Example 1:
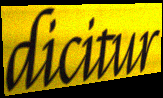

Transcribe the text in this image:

dicitur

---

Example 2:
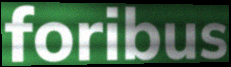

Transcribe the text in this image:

foribus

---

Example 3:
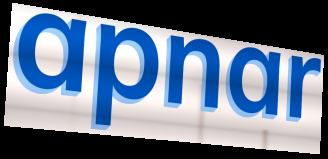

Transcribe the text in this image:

apnar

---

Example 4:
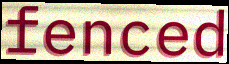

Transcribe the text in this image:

fenced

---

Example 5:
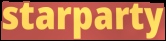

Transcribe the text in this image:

starparty